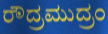
ರೌದ್ರಮುದ್ರಂ